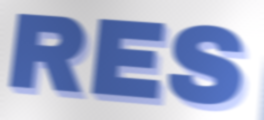
RES